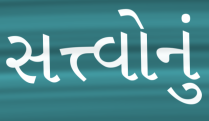
સત્ત્વોનું